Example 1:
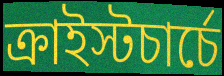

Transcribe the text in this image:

ক্রাইস্টচার্চে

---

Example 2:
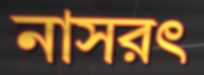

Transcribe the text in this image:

নাসরৎ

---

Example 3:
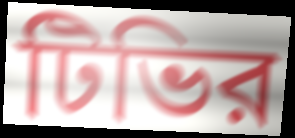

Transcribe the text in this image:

টিভির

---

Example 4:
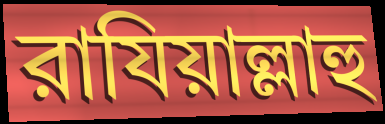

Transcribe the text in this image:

রাযিয়াল্লাহু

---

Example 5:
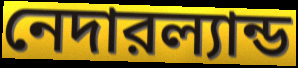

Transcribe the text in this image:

নেদারল্যান্ড